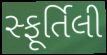
સ્ફૂર્તિલી